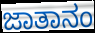
ಜಾತಾನಂ